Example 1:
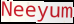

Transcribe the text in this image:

Neeyum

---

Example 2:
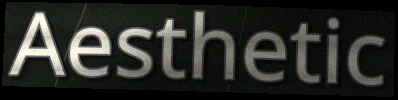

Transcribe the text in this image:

Aesthetic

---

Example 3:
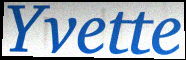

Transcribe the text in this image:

Yvette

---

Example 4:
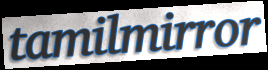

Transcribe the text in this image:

tamilmirror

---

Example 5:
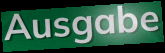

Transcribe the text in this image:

Ausgabe